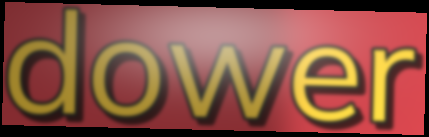
dower